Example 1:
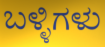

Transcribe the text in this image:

ಬಳ್ಳಿಗಳು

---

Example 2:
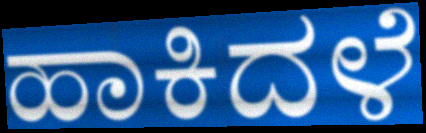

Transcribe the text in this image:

ಹಾಕಿದಳೆ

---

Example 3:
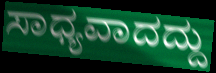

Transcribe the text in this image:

ಸಾಧ್ಯವಾದದ್ದು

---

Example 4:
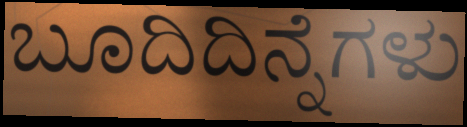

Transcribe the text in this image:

ಬೂದಿದಿನ್ನೆಗಳು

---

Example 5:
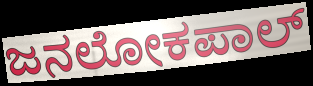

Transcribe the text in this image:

ಜನಲೋಕಪಾಲ್